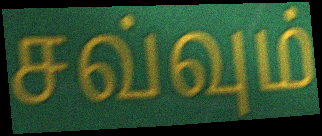
சவ்வும்